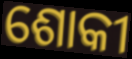
ଶୋକୀ